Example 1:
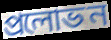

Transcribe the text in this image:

প্রলোভন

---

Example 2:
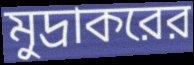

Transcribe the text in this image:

মুদ্রাকরের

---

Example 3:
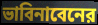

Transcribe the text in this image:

ভাবিনাবেনের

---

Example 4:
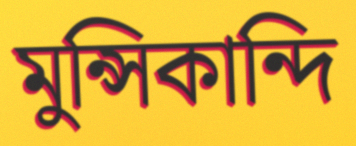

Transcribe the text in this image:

মুন্সিকান্দি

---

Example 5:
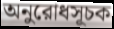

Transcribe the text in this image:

অনুরোধসূচক